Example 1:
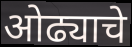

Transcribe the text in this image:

ओढ्याचे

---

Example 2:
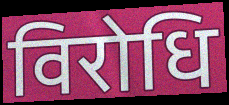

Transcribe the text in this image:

विरोधि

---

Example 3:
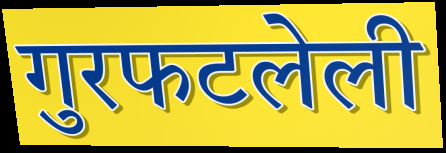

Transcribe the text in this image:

गुरफटलेली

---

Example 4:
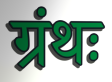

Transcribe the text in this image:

ग्रंथः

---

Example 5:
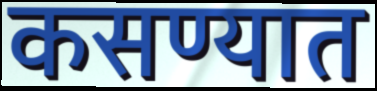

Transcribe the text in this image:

कसण्यात